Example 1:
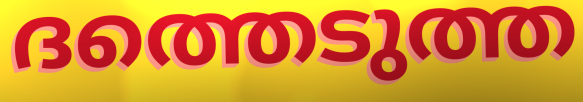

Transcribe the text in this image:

ദത്തെടുത്ത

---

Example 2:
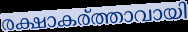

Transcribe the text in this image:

രക്ഷാകര്ത്താവായി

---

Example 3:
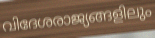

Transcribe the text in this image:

വിദേശരാജ്യങ്ങളിലും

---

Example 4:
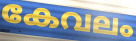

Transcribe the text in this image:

കേവലം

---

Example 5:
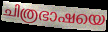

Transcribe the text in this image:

ചിത്രഭാഷയെ